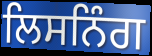
ਲਿਸਨਿੰਗ